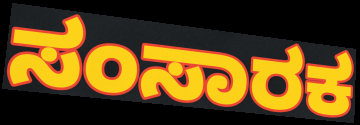
ಸಂಸಾರಕ